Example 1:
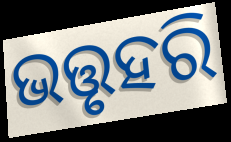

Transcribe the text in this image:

ଭତ୍ତୃହରି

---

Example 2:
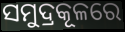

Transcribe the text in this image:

ସମୁଦ୍ରକୂଳରେ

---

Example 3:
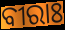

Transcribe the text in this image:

ବୀରାଃ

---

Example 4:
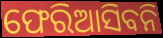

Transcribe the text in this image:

ଫେରିଆସିବନି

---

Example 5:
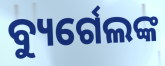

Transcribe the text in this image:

ବ୍ୟୁର୍ଗେଲଙ୍କ